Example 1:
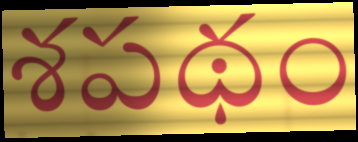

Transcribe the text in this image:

శపథం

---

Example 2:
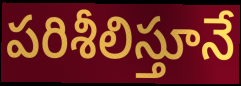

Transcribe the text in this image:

పరిశీలిస్తూనే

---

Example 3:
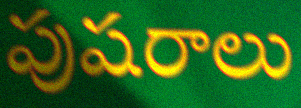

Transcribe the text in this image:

పుషరాలు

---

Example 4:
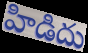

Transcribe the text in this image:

హిడిదు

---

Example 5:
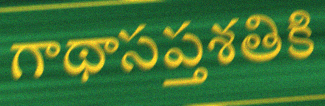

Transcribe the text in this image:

గాథాసప్తశతికి